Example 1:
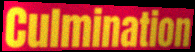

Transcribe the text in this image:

Culmination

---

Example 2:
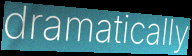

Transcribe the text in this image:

dramatically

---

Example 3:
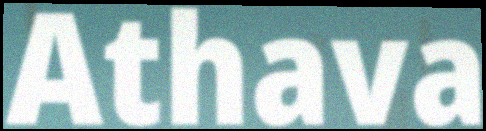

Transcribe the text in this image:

Athava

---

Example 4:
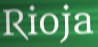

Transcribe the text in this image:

Rioja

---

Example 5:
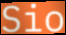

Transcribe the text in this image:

Sio